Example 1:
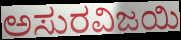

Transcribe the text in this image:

ಅಸುರವಿಜಯಿ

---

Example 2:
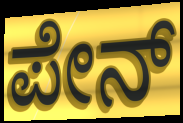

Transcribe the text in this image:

ಪೇನ್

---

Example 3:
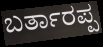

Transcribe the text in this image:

ಬರ್ತಾರಪ್ಪ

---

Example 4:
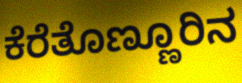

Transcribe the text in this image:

ಕೆರೆತೊಣ್ಣೂರಿನ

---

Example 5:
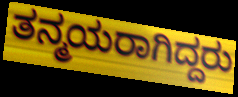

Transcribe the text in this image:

ತನ್ಮಯರಾಗಿದ್ದರು